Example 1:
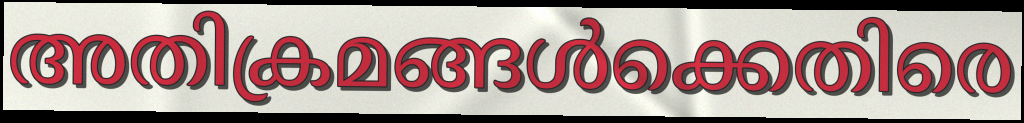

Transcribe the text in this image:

അതിക്രമങ്ങൾക്കെതിരെ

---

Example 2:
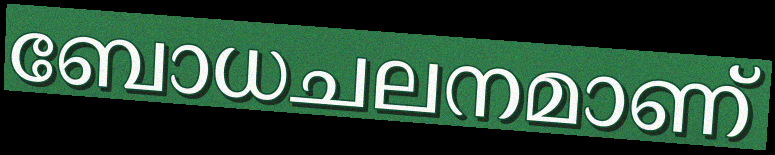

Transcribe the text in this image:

ബോധചലനമാണ്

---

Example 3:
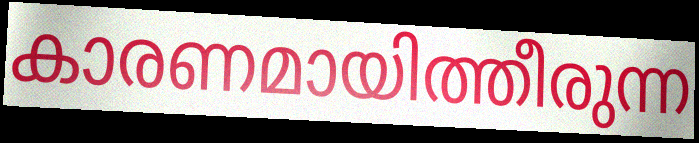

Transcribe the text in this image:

കാരണമായിത്തീരുന്ന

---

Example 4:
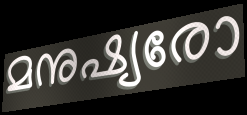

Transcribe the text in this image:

മനുഷ്യരോ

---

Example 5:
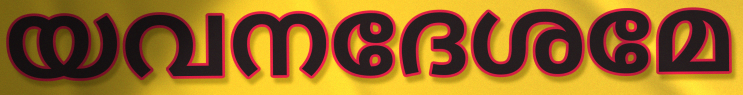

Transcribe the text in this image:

യവനദേശമേ